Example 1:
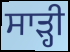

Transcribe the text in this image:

ਸਾੜ੍ਹੀ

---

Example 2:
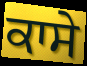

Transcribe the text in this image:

ਕਾਸੇ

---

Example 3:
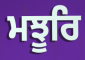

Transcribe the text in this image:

ਮਝੂਰਿ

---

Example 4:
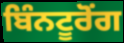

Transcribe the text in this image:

ਬਿੰਨਟੂਰੋਂਗ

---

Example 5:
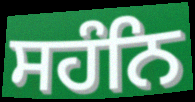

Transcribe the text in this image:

ਸਹੰਨਿ